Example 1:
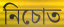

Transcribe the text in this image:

নিচোত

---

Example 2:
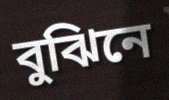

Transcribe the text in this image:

বুঝিনে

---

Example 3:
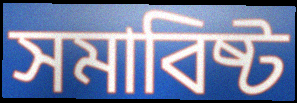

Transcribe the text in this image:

সমাবিষ্ট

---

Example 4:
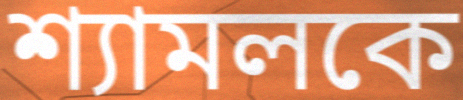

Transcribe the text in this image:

শ্যামলকে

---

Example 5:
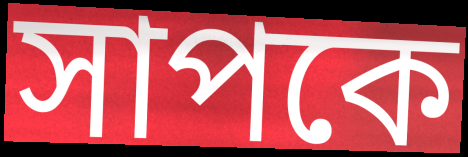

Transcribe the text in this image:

সাপকে